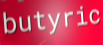
butyric